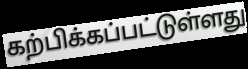
கற்பிக்கப்பட்டுள்ளது